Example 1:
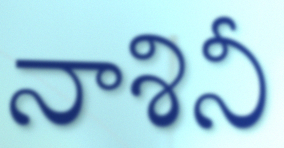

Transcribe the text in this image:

నాశినీ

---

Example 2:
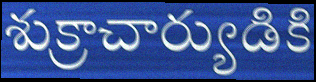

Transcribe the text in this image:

శుక్రాచార్యుడికి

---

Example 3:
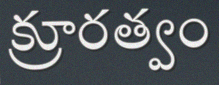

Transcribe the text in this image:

క్రూరత్వం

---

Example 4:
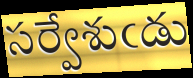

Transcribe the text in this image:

సర్వేశుఁడు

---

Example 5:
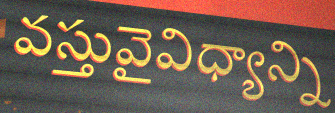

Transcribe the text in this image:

వస్తువైవిధ్యాన్ని